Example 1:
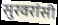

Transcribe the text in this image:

सुरवरांसी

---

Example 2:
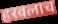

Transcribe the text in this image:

हरवलाच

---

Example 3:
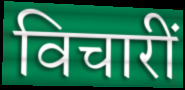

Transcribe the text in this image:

विचारीं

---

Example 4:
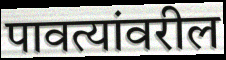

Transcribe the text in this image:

पावत्यांवरील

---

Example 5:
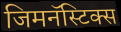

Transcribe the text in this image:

जिमनॅस्टिक्स